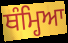
ਥੰਮ੍ਹ੍ਹਿਆ